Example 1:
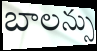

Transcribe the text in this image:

బాలన్సు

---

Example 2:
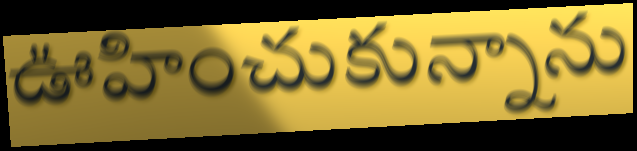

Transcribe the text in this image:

ఊహించుకున్నాను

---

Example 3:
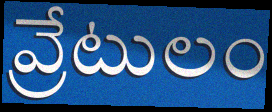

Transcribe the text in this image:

వ్రేటులం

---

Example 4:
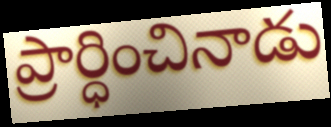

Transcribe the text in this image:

ప్రార్ధించినాడు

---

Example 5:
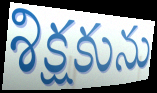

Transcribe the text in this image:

శిక్షకును